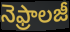
నెఫ్రాలజీ